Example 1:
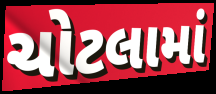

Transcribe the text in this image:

ચોટલામાં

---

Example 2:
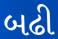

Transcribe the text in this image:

બઢી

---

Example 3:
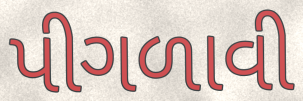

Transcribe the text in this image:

પીગળાવી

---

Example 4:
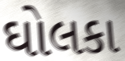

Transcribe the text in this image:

ઘોલકા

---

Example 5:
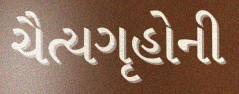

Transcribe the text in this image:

ચૈત્યગૃહોની